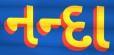
નન્દા